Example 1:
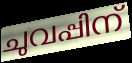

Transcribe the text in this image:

ചുവപ്പിന്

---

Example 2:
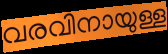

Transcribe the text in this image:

വരവിനായുള്ള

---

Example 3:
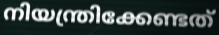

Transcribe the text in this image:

നിയന്ത്രിക്കേണ്ടത്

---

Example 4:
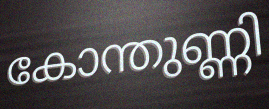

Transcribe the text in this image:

കോന്തുണ്ണി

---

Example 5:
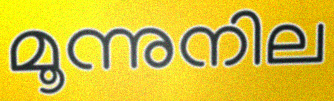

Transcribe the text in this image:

മൂന്നുനില